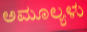
ಅಮೂಲ್ಯಳು